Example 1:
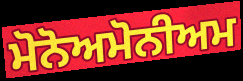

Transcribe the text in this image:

ਮੋਨੋਅਮੋਨੀਅਮ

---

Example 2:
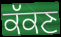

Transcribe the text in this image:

ਕੱਕਣ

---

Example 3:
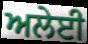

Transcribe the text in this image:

ਅਲੇਈ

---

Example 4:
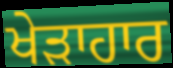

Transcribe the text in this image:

ਖੇੜਾਹਾਰ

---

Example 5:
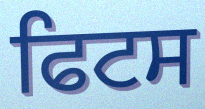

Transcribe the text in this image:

ਫਿਟਸ